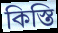
কিস্তি